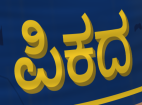
ಪಿಕದ